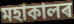
মহাকালৰ